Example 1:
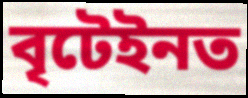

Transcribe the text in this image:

বৃটেইনত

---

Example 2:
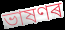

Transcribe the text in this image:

ভাষণৰ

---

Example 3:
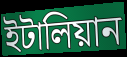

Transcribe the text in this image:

ইটালিয়ান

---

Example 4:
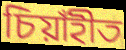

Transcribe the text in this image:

চিয়াঁহীত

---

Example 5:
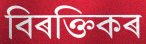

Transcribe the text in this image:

বিৰক্তিকৰ